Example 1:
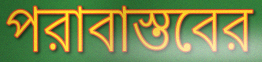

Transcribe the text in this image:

পরাবাস্তবের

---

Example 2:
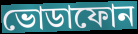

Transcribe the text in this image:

ভোডাফোন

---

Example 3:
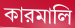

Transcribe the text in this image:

কারমালি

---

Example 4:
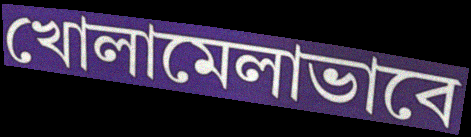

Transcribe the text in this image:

খোলামেলাভাবে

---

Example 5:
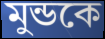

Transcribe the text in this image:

মুন্ডকে